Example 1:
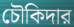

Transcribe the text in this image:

চৌকিদার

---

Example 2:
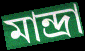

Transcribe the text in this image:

মান্দ্রা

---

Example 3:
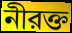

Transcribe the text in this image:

নীরক্ত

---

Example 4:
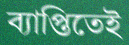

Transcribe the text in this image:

ব্যাপ্তিতেই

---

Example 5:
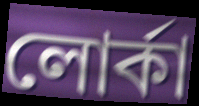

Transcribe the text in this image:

লোর্কা